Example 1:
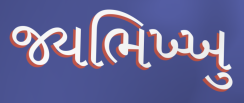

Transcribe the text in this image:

જ્યભિખ્ખુ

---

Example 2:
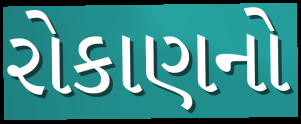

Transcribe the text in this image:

રોકાણનો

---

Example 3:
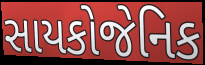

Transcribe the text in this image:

સાયકોજેનિક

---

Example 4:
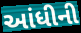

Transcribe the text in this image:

આંધીની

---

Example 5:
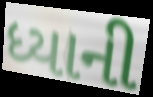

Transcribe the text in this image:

ધ્યાની